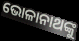
ଭୋଳାନାଥଙ୍କୁ